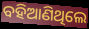
ବହିଆଣିଥିଲେ